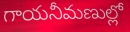
గాయనీమణుల్లో